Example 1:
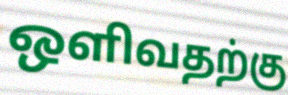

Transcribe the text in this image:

ஒளிவதற்கு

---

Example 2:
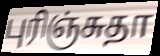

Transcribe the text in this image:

புரிஞ்சுதா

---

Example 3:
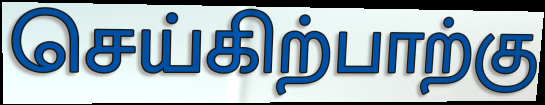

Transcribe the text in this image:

செய்கிற்பாற்கு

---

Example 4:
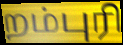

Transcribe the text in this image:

றம்புரி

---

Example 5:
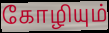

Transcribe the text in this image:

கோழியும்